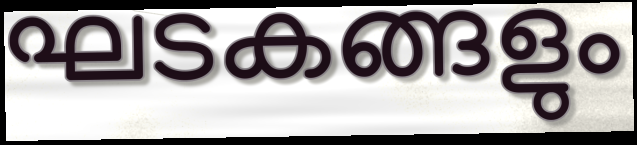
ഘടകങ്ങളും